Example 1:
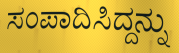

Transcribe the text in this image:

ಸಂಪಾದಿಸಿದ್ದನ್ನು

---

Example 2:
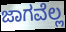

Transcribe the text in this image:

ಜಾಗವೆಲ್ಲ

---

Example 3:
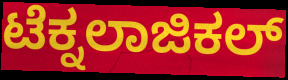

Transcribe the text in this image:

ಟೆಕ್ನಲಾಜಿಕಲ್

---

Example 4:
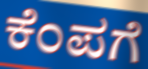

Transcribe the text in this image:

ಕೆಂಪಗೆ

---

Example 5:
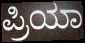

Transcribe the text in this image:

ಪ್ರಿಯಾ